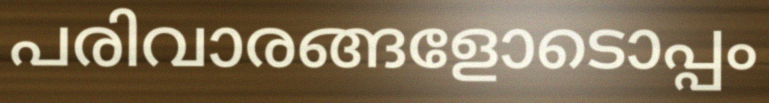
പരിവാരങ്ങളോടൊപ്പം